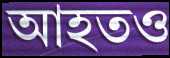
আহতও